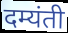
दम्यंती